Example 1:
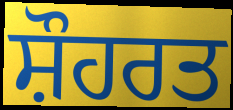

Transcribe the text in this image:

ਸ਼ੌਹਰਤ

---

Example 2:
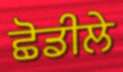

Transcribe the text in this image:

ਛੋਡੀਲੇ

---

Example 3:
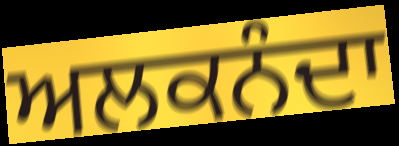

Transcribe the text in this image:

ਅਲਕਨੰਦਾ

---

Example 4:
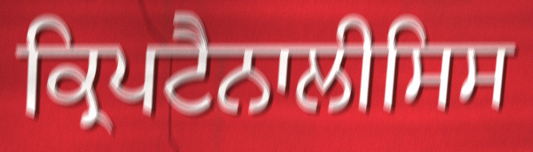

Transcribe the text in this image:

ਕ੍ਰਿਪਟੈਨਾਲੀਸਿਸ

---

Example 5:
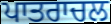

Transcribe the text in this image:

ਪਾਤਰਾਚਲ